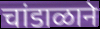
चांडाळाने